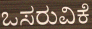
ಒಸರುವಿಕೆ